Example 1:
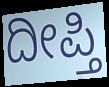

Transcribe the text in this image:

ದೀಪ್ತಿ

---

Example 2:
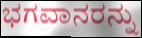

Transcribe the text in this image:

ಭಗವಾನರನ್ನು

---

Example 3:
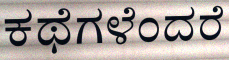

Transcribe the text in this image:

ಕಥೆಗಳೆಂದರೆ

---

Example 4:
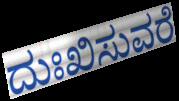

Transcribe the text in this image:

ದುಃಖಿಸುವರೆ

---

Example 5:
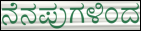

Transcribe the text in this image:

ನೆನಪುಗಳಿಂದ